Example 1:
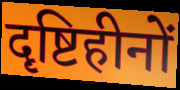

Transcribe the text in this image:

दृष्टिहीनों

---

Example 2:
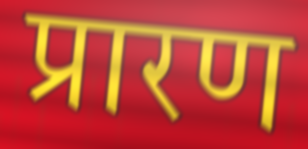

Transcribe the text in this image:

प्रारण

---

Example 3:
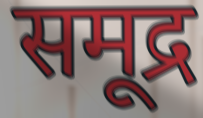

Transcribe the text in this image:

समूद्र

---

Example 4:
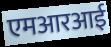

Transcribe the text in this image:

एमआरआई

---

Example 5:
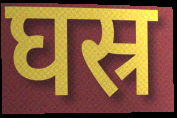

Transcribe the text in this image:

घस्र